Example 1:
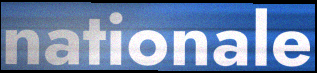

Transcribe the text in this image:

nationale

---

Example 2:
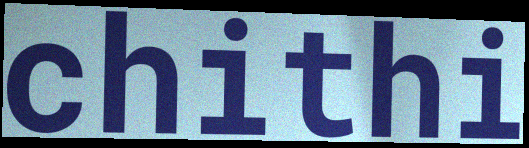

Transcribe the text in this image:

chithi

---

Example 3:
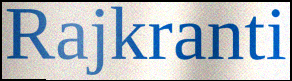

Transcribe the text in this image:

Rajkranti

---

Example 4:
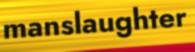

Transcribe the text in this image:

manslaughter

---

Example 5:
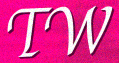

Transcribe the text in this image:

TW